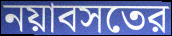
নয়াবসতের